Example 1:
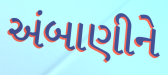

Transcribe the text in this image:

અંબાણીને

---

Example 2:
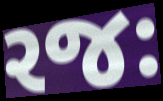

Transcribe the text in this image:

રજઃ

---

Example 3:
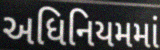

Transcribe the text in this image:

અધિનિયમમાં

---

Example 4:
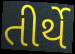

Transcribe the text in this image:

તીર્થે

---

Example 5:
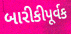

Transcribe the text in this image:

બારીકીપૂર્વક